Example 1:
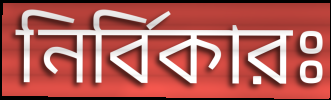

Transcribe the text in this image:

নির্বিকারঃ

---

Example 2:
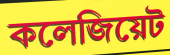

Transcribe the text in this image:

কলেজিয়েট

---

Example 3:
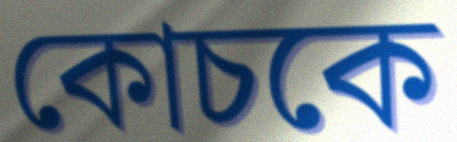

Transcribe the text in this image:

কোচকে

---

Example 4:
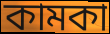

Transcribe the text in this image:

কামকা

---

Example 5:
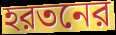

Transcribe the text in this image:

হরতনের